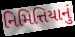
નિમિત્તિયાનું